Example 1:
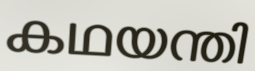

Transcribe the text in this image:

കഥയന്തി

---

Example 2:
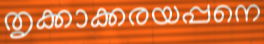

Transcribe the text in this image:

തൃക്കാക്കരയപ്പനെ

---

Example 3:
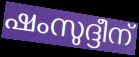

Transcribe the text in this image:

ഷംസുദ്ദീന്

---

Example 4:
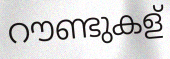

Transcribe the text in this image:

റൗണ്ടുകള്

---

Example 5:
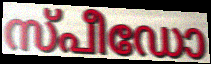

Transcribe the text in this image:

സ്പീഡോ